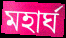
মহার্ঘ